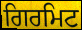
ਗਿਰਮਿਟ